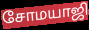
சோமயாஜி